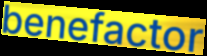
benefactor